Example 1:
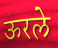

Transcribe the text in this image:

ऊरले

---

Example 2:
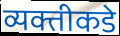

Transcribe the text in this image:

व्यक्तीकडे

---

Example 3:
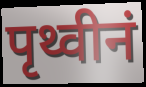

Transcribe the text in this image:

पृथ्वीनं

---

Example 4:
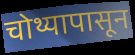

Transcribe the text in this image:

चोथ्यापासून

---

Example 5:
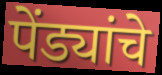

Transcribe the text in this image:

पेंड्यांचे